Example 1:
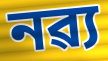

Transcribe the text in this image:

নৱ্য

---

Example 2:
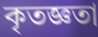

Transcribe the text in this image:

কৃতজ্ঞতা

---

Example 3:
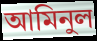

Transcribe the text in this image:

আমিনুল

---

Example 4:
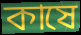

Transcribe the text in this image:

কাষে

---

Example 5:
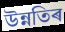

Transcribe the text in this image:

উন্নতিৰ